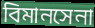
বিমানসেনা